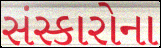
સંસ્કારોના